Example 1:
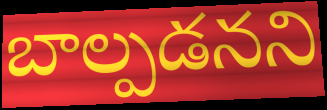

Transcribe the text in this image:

బాల్పడనని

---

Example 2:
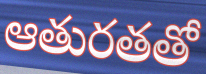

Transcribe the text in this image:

ఆతురతతో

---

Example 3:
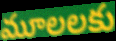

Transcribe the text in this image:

మూలలకు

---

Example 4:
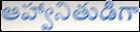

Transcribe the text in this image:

ఆహ్వానితుడిగా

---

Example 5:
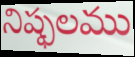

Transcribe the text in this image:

నిష్ఫలము